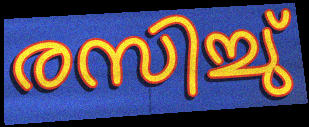
രസിച്ചു്